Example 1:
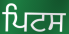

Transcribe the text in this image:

ਪਿਟਸ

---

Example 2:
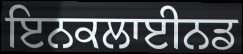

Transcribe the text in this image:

ਇਨਕਲਾਈਨਡ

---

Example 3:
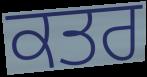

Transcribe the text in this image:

ਕਤਰ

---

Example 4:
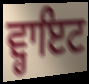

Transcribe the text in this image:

ਵ੍ਹਾਇਟ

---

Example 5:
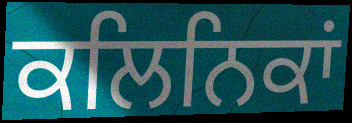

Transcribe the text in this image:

ਕਲਿਨਿਕਾਂ